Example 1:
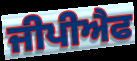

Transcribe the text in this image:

ਜੀਪੀਐਫ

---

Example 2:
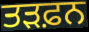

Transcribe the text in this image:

ਤੜਫ਼ਨ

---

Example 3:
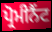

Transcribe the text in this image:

ਪ੍ਰੋਮੀਨੈਂਟ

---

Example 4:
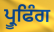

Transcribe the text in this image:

ਪ੍ਰੂਫਿੰਗ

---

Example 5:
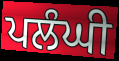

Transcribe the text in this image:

ਪਲੰਘੀ